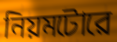
নিয়মটোৱে